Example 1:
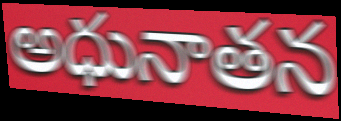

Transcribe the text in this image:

అధునాతన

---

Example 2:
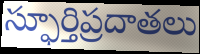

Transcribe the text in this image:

స్ఫూర్తిప్రదాతలు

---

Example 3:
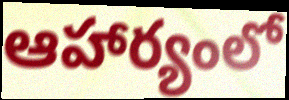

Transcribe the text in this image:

ఆహార్యంలో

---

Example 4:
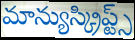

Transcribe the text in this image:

మాన్యుస్క్రిప్ట్స్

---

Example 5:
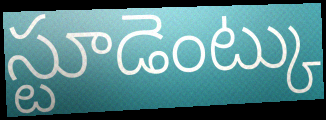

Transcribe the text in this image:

స్టూడెంట్కు